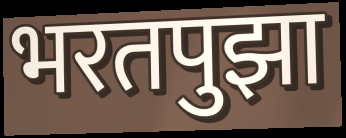
भरतपुझा